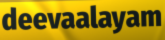
deevaalayam